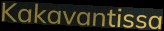
Kakavantissa